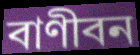
বাণীবন